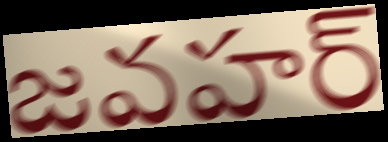
జవహర్